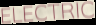
ELECTRIC